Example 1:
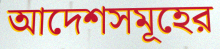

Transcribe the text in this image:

আদেশসমূহের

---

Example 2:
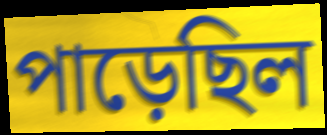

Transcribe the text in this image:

পাড়েছিল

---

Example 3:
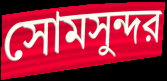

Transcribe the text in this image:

সোমসুন্দর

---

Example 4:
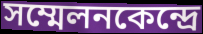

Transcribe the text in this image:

সম্মেলনকেন্দ্রে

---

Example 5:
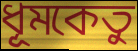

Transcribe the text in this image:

ধূমকেতু